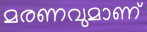
മരണവുമാണ്